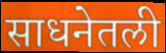
साधनेतली